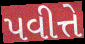
પવીત્તે